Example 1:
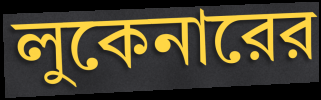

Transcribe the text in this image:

লুকেনারের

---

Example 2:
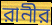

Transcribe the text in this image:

রানীর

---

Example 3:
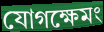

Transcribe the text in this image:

যোগক্ষেমং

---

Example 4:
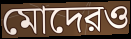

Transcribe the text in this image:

মোদেরও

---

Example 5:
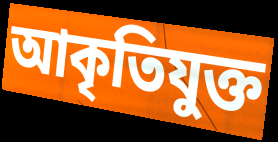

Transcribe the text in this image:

আকৃতিযুক্ত